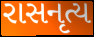
રાસનૃત્ય